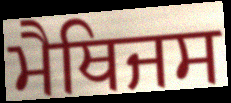
ਮੈਥਿਜਸ